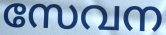
സേവന